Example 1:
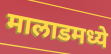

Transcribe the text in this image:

मालाडमध्ये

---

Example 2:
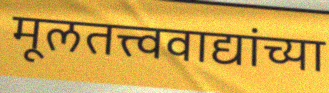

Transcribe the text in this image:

मूलतत्त्ववाद्यांच्या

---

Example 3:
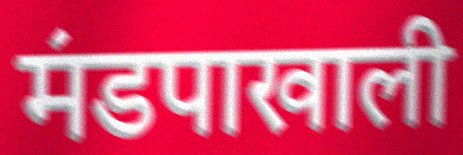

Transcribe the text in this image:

मंडपाखाली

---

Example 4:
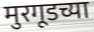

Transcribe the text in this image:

मुरगूडच्या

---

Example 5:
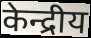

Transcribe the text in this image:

केन्द्रीय